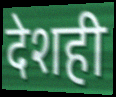
देशही